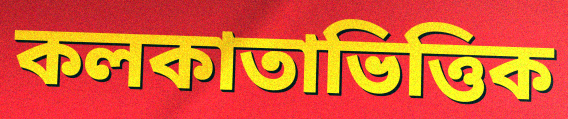
কলকাতাভিত্তিক